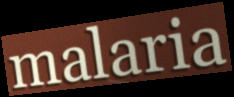
malaria